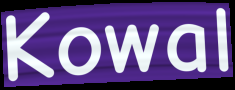
Kowal